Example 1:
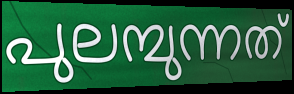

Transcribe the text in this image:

പുലമ്പുന്നത്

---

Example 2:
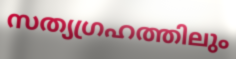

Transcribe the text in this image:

സത്യഗ്രഹത്തിലും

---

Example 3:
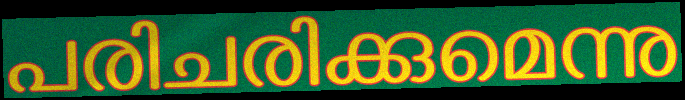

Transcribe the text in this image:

പരിചരിക്കുമെന്നു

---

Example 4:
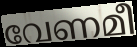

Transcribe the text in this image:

വേണമീ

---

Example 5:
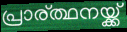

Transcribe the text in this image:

പ്രാര്ത്ഥനയ്ക്ക്